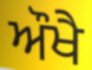
ਔਖੈ